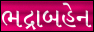
ભદ્રાબહેન